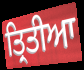
ਤ੍ਰਿਤੀਆ